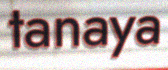
tanaya